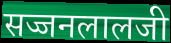
सज्जनलालजी